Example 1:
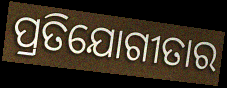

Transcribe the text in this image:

ପ୍ରତିଯୋଗୀତାର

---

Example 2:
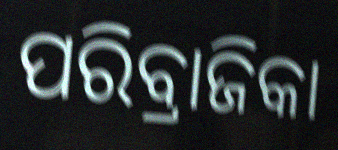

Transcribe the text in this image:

ପରିବ୍ରାଜିକା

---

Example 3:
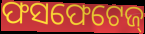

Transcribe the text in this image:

ଫସଫେଟେଜ୍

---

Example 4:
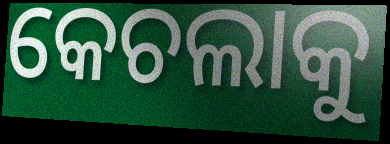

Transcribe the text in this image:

କେଚଲାକୁ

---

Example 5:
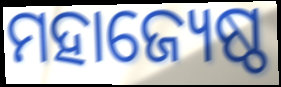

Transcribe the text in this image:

ମହାଜ୍ୟେଷ୍ଠ